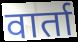
वार्ता